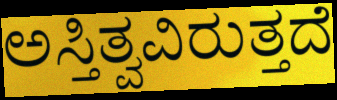
ಅಸ್ತಿತ್ವವಿರುತ್ತದೆ